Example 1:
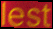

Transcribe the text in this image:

lest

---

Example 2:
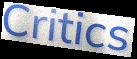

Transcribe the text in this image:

Critics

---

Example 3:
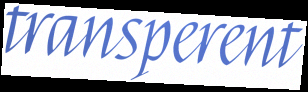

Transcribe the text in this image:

transperent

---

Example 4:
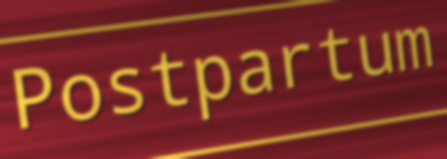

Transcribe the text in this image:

Postpartum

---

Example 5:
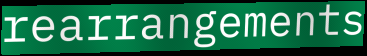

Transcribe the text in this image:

rearrangements